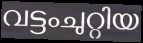
വട്ടംചുറ്റിയ